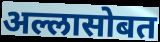
अल्लासोबत